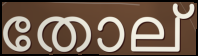
തോല്